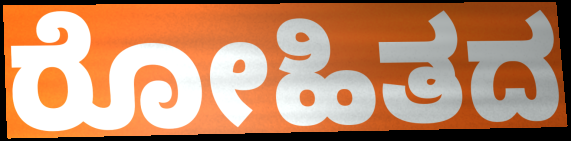
ರೋಹಿತದ